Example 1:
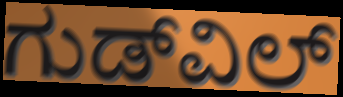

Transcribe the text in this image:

ಗುಡ್‌ವಿಲ್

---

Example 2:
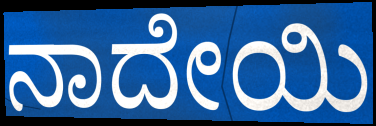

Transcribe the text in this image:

ನಾದೇಯಿ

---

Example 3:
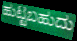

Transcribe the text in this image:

ಹುಟ್ಟಬಹುದು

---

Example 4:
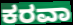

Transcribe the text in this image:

ಕರವಾ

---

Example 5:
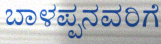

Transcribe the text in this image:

ಬಾಳಪ್ಪನವರಿಗೆ